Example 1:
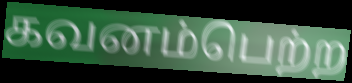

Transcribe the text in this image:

கவனம்பெற்ற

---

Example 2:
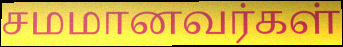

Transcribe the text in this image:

சமமானவர்கள்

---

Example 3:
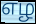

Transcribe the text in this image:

எழ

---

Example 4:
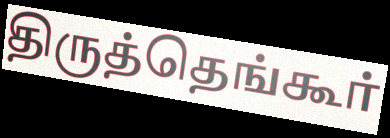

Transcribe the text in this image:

திருத்தெங்கூர்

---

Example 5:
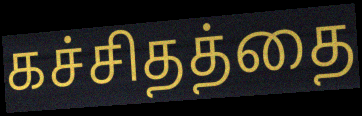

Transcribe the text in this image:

கச்சிதத்தை